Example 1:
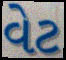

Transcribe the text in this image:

વેટ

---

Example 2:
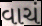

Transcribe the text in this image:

વાચં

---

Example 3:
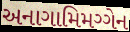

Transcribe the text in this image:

અનાગામિમગ્ગેન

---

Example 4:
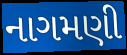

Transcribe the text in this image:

નાગમણી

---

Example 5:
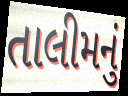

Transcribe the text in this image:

તાલીમનું